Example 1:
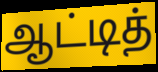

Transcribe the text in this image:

ஆட்டித்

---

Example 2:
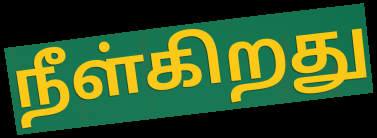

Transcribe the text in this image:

நீள்கிறது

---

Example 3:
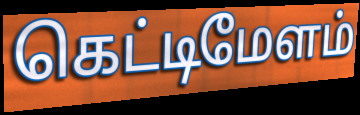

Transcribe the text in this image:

கெட்டிமேளம்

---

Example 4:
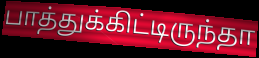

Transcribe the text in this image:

பாத்துக்கிட்டிருந்தா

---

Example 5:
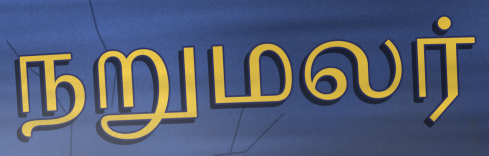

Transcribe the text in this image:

நறுமலர்